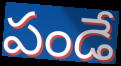
పండే